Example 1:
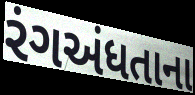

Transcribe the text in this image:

રંગઅંધતાના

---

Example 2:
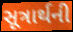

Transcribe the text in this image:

સૂત્રાર્થની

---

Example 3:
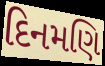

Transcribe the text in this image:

દિનમણિ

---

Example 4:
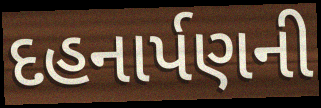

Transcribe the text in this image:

દહનાર્પણની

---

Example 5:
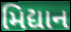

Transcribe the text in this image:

મિદ્યાન